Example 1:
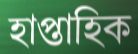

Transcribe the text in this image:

হাপ্তাহিক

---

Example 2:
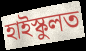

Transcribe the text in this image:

হাইস্কুলত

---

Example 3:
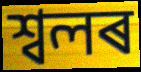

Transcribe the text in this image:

শ্বলৰ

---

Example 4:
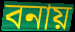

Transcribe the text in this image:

বনায়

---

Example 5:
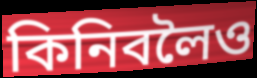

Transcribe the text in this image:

কিনিবলৈও